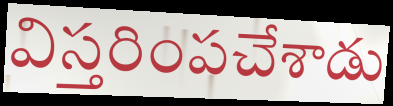
విస్తరింపచేశాడు